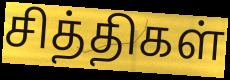
சித்திகள்